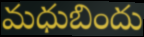
మధుబిందు